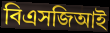
বিএসজিআই